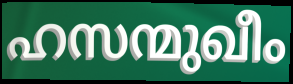
ഹസന്മുഖീം